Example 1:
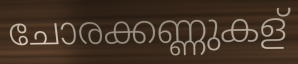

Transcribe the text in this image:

ചോരക്കണ്ണുകള്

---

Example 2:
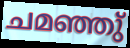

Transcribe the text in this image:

ചമഞ്ഞു്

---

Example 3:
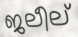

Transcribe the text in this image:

ജലീല്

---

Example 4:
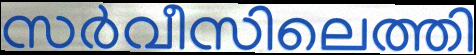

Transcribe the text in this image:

സർവീസിലെത്തി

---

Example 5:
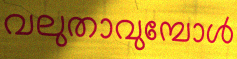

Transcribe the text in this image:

വലുതാവുമ്പോൾ